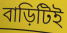
বাড়িটিই